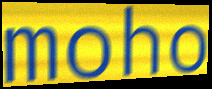
moho